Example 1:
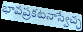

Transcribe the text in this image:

భావప్రకటనాస్వేచ్ఛ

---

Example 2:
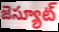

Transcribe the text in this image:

జెస్యూట్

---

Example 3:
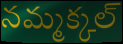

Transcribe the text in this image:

నమ్మక్కల్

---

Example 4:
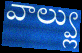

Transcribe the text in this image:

వాల్వ్లు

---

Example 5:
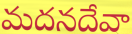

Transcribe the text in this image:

మదనదేవా